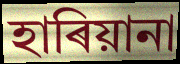
হাৰিয়ানা